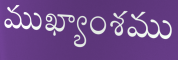
ముఖ్యాంశము